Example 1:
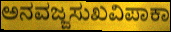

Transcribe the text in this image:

ಅನವಜ್ಜಸುಖವಿಪಾಕಾ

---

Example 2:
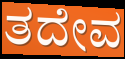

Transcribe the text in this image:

ತದೇವ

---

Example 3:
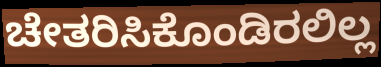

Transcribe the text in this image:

ಚೇತರಿಸಿಕೊಂಡಿರಲಿಲ್ಲ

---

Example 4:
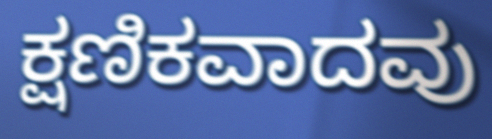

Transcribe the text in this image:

ಕ್ಷಣಿಕವಾದವು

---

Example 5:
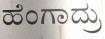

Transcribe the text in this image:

ಹೆಂಗಾದ್ರು